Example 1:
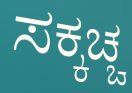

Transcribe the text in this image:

ಸಕ್ಕಚ್ಚ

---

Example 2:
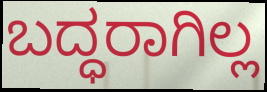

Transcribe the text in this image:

ಬದ್ಧರಾಗಿಲ್ಲ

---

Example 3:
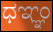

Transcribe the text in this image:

ಧಞ್ಞಂ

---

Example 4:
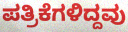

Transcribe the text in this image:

ಪತ್ರಿಕೆಗಳಿದ್ದವು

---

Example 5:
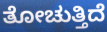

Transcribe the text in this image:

ತೋಚುತ್ತಿದೆ